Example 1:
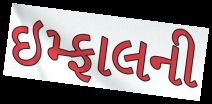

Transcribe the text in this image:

ઇમ્ફાલની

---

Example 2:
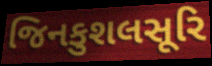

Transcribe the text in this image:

જિનકુશલસૂરિ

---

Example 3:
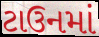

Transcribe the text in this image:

ટાઉનમાં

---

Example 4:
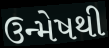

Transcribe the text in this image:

ઉન્મેષથી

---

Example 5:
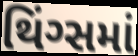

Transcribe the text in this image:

થિંગ્સમાં